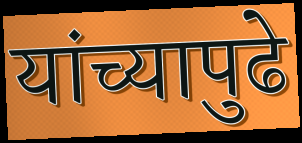
यांच्यापुढे